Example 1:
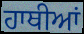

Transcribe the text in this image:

ਹਾਥੀਆਂ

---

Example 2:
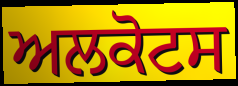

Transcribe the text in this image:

ਅਲਕੋਟਸ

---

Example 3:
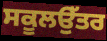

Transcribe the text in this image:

ਸਕੂਲਉੱਤਰ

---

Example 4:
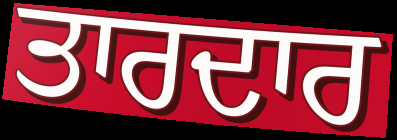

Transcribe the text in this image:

ਤਾਰਦਾਰ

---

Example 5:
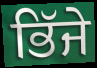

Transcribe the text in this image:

ਭਿੱਜੇ